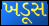
ખડૂસ